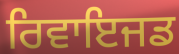
ਰਿਵਾਇਜਡ